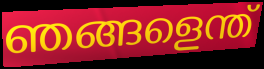
ഞങ്ങളെന്ത്